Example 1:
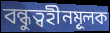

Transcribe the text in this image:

বন্ধুত্বহীনমূলক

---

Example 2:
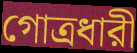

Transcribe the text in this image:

গোত্রধারী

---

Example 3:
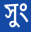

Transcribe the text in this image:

সুং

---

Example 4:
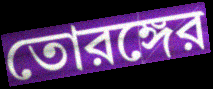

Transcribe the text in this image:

তোরঙ্গের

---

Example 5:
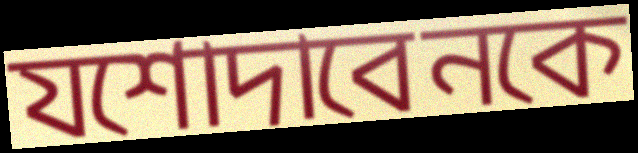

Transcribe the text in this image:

যশোদাবেনকে